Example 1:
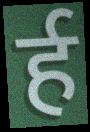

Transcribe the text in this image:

र्ह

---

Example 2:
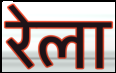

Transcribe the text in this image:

रेला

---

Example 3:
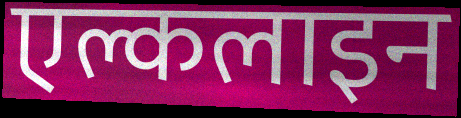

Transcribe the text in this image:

एल्कलाइन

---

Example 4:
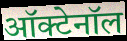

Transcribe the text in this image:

ऑक्टेनॉल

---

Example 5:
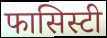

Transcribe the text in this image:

फासिस्टी